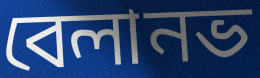
বেলানভ